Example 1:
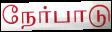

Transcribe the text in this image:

நேர்பாடு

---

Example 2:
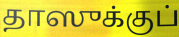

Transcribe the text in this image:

தாஸுக்குப்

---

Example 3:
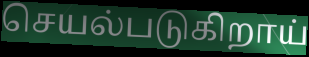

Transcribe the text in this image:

செயல்படுகிறாய்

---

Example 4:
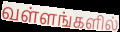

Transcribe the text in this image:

வள்ளங்களில்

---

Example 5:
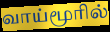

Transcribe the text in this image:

வாய்மூரில்